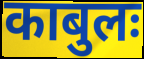
काबुलः